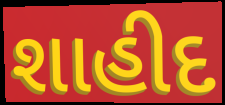
શાહીદ